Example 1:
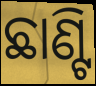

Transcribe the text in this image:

ଛାଣ୍ଟି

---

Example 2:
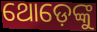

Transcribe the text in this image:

ଥୋଡ଼େଙ୍କୁ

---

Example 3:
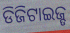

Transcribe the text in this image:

ଡିଜିଟାଇଜ୍ଡ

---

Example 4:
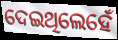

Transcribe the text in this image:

ଦେଇଥିଲେହେଁ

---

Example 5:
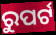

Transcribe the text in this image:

ରୁପର୍ଟ